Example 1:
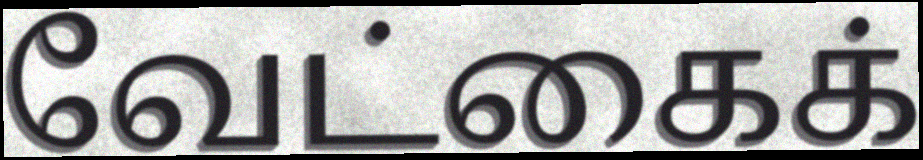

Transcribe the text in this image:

வேட்கைக்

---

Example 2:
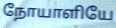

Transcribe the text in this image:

நோயாளியே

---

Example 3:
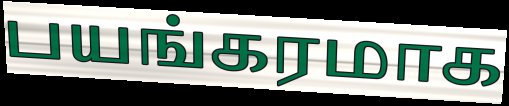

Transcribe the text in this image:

பயங்கரமாக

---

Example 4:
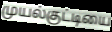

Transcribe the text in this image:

முயல்குட்டியை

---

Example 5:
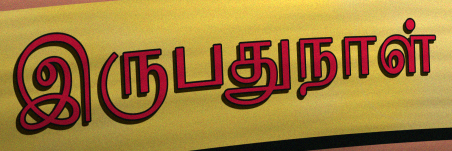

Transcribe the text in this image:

இருபதுநாள்